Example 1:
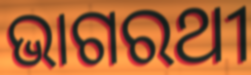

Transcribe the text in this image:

ଭାଗରଥୀ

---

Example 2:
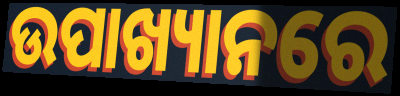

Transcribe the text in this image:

ଉପାଖ୍ୟାନରେ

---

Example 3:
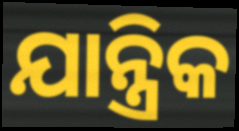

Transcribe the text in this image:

ଯାନ୍ତ୍ରିକ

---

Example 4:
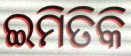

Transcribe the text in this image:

ଇମିତିକି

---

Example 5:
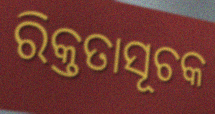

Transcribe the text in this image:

ରିକ୍ତତାସୂଚକ